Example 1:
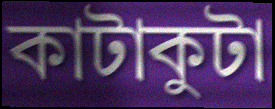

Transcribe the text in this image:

কাটাকুটা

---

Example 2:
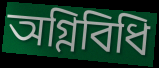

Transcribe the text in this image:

অগ্নিবিধি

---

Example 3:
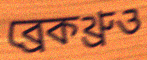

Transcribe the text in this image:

ব্রেকথ্রুও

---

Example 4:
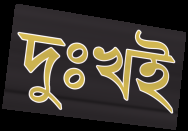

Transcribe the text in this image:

দুঃখই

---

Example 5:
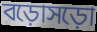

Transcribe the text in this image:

বড়োসড়ো